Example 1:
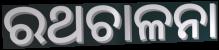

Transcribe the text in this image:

ରଥଚାଳନା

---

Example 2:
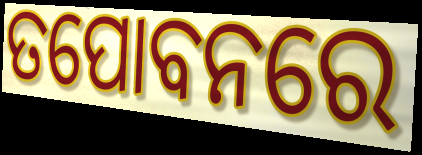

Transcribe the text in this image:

ତପୋବନରେ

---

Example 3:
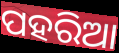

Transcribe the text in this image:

ପହରିଆ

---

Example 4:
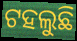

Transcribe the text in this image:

ଟହଲୁଛି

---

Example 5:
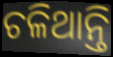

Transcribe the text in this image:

ଚଳିଥାନ୍ତି